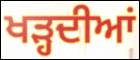
ਖੜ੍ਹਦੀਆਂ